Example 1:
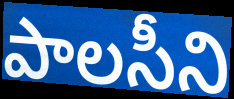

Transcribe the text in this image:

పాలసీని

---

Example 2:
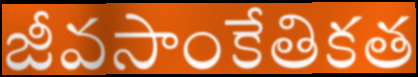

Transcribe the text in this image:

జీవసాంకేతికత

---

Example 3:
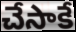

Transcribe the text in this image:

చేసాకే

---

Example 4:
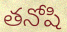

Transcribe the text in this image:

తనోషి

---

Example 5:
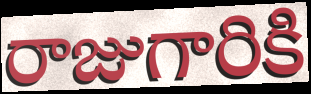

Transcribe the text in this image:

రాజుగారికి